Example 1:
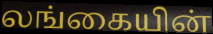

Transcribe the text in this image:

லங்கையின்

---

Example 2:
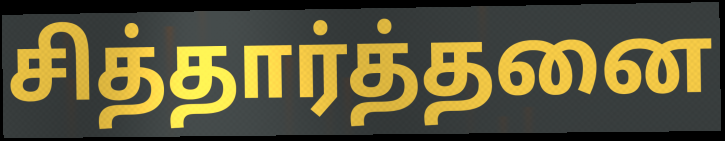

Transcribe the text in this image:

சித்தார்த்தனை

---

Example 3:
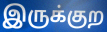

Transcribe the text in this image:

இருக்குற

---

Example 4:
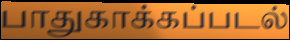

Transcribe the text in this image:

பாதுகாக்கப்படல்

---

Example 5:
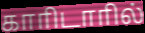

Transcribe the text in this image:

காரிடாரில்